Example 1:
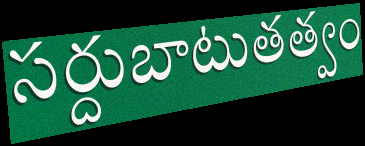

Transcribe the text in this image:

సర్దుబాటుతత్వం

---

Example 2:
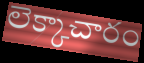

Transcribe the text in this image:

లెక్కాచారం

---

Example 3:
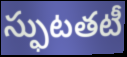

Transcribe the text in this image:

స్ఫుటతటీ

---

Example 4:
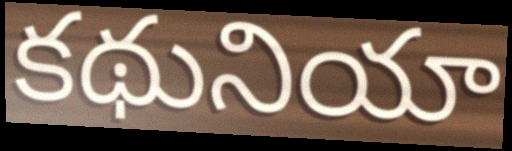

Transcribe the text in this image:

కథునియా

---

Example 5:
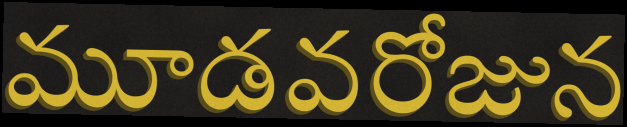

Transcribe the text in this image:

మూడవరోజున